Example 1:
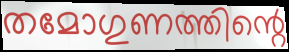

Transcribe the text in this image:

തമോഗുണത്തിന്റെ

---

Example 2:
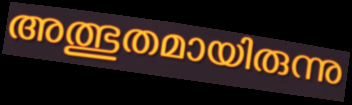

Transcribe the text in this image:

അത്ഭുതമായിരുന്നു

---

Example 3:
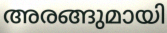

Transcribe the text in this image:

അരങ്ങുമായി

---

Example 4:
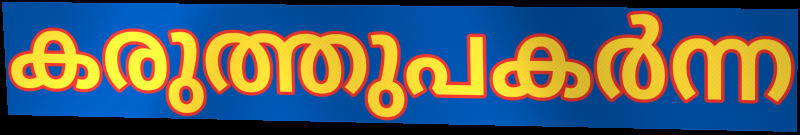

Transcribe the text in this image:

കരുത്തുപകർന്ന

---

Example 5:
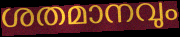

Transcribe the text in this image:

ശതമാനവും